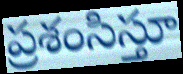
ప్రశంసిస్తూ